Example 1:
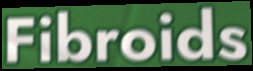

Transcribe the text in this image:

Fibroids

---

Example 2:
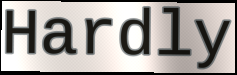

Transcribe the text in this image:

Hardly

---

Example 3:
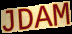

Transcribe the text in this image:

JDAM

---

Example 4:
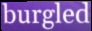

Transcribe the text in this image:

burgled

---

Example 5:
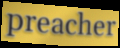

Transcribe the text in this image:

preacher